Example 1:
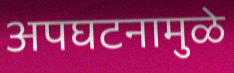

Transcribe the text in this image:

अपघटनामुळे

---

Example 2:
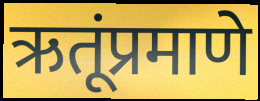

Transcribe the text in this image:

ऋतूंप्रमाणे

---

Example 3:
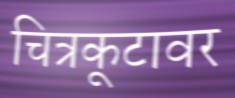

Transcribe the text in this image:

चित्रकूटावर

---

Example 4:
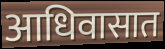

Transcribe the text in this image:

आधिवासात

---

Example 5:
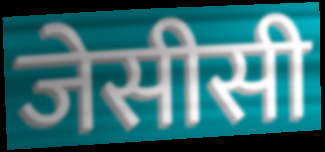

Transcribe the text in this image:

जेसीसी